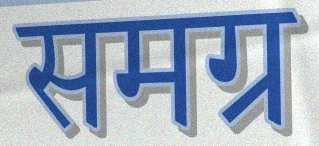
समग्र